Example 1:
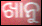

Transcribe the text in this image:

ଖାନୁ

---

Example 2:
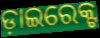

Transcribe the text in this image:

ଡ଼ାଇରେକ୍ଟ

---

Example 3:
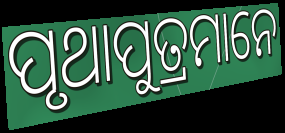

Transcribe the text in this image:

ପୃଥାପୁତ୍ରମାନେ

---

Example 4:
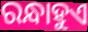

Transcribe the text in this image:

ରନ୍ଧାହୁଏ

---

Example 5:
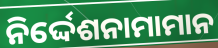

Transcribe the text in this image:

ନିର୍ଦ୍ଦେଶନାମାମାନ